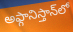
అఫ్గానిస్తాన్‌లో